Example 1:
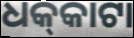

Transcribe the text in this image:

ଧକ୍‌କାଟା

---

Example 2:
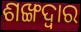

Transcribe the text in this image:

ଶଙ୍ଖଦ୍ୱାର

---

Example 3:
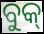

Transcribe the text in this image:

ବୁକ୍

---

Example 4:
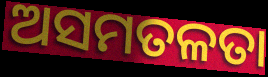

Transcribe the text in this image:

ଅସମତଳତା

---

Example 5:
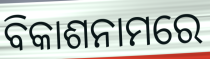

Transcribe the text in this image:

ବିକାଶନାମରେ